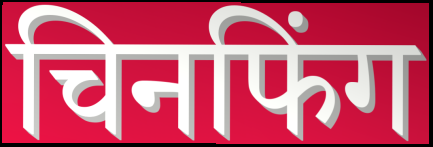
चिनफिंग